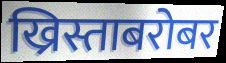
ख्रिस्ताबरोबर